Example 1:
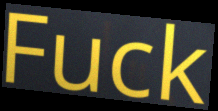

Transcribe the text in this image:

Fuck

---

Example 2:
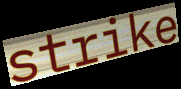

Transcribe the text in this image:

strike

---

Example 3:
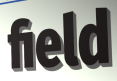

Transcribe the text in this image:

field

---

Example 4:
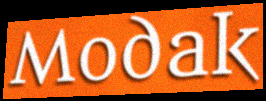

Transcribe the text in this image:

Modak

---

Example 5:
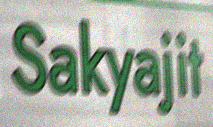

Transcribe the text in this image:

Sakyajit